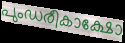
പുംഡരീകാക്ഷോ